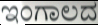
ಇಂಗಾಲದ